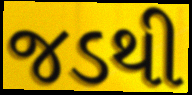
જડથી